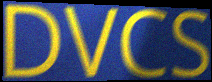
DVCS